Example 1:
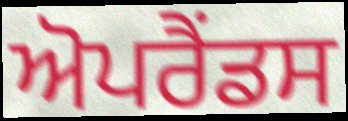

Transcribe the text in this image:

ਅੋਪਰੈਂਡਸ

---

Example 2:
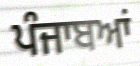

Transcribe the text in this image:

ਪੰਜਾਬਆਂ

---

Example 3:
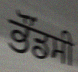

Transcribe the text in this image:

ਭੌਂਡਸੀ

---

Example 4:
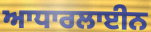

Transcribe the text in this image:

ਆਧਾਰਲਾਈਨ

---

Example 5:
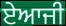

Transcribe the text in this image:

ਏਆਜੀ